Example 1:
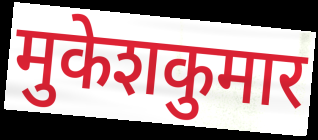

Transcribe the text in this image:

मुकेशकुमार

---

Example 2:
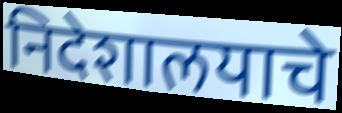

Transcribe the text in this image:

निदेशालयाचे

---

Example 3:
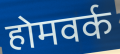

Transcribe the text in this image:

होमवर्क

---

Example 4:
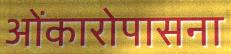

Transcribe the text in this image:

ओंकारोपासना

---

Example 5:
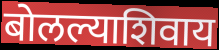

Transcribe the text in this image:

बोलल्याशिवाय